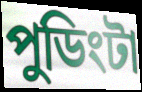
পুডিংটা